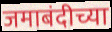
जमाबंदीच्या